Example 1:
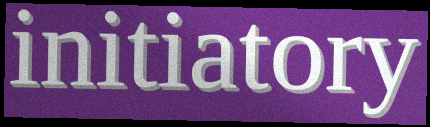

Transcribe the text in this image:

initiatory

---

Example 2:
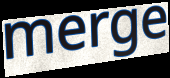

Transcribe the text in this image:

merge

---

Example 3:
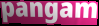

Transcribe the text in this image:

pangam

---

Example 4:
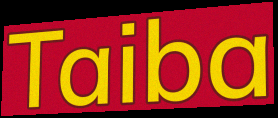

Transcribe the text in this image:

Taiba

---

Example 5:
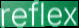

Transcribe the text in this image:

reflex